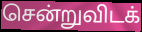
சென்றுவிடக்